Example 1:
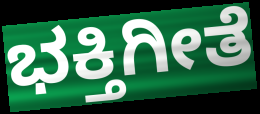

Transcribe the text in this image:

ಭಕ್ತಿಗೀತೆ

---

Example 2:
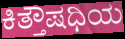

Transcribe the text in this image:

ಕಿತ್ತೌಷಧಿಯ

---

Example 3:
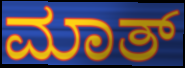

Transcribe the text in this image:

ಮಾತ್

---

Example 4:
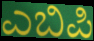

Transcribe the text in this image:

ಎಬಿಪಿ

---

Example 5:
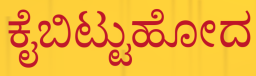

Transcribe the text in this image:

ಕೈಬಿಟ್ಟುಹೋದ